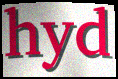
hyd